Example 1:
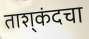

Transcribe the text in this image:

ताश्कंदचा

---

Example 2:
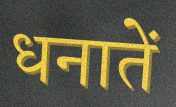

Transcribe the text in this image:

धनातें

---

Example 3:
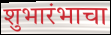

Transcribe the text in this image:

शुभारंभाचा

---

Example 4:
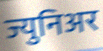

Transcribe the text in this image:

ज्युनिअर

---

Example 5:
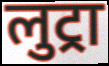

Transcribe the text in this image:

लुट्रा